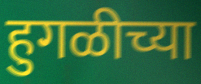
हुगळीच्या